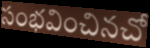
సంభవించినచో